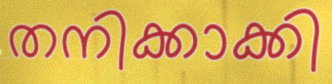
തനിക്കാക്കി